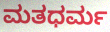
ಮತಧರ್ಮ